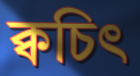
ক্বচিৎ